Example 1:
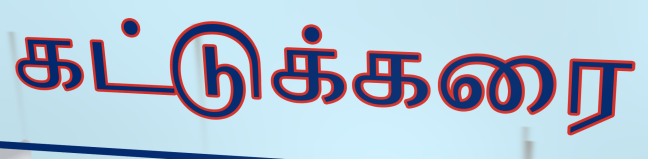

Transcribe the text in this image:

கட்டுக்கரை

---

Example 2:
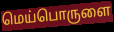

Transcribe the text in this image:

மெய்பொருளை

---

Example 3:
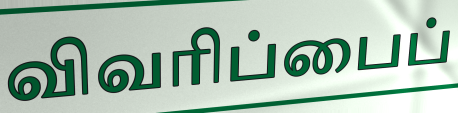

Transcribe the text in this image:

விவரிப்பைப்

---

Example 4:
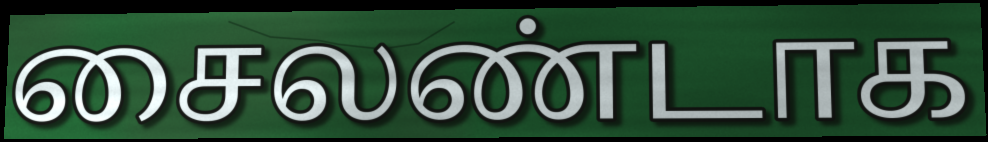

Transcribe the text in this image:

சைலண்டாக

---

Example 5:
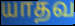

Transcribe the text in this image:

யாதவ